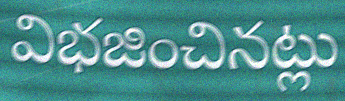
విభజించినట్లు